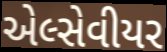
એલ્સેવીયર